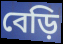
বেড়ি